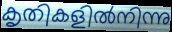
കൃതികളിൽനിന്നു